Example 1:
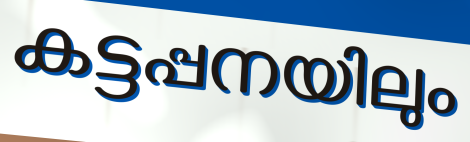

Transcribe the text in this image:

കട്ടപ്പനയിലും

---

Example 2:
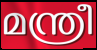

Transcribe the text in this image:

മന്ത്രീ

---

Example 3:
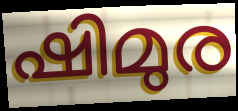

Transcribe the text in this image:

ഷിമുര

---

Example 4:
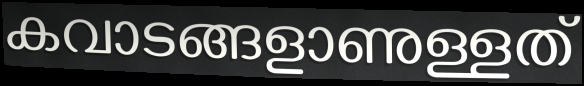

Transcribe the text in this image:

കവാടങ്ങളാണുള്ളത്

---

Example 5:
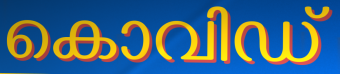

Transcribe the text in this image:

കൊവിഡ്